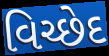
વિચ્છેદ